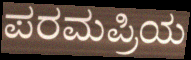
ಪರಮಪ್ರಿಯ